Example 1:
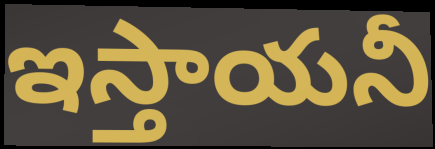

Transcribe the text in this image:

ఇస్తాయనీ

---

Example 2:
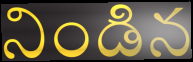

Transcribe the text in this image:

నిండిన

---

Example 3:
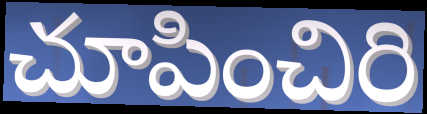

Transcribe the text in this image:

చూపించిరి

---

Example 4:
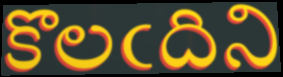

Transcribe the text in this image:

కొలఁదిని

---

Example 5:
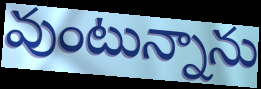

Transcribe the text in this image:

వుంటున్నాను